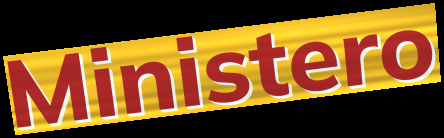
Ministero